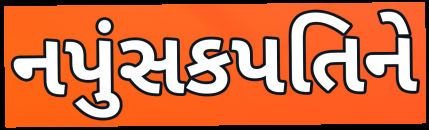
નપુંસકપતિને